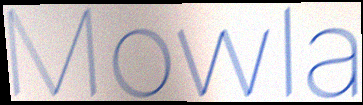
Mowla